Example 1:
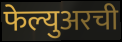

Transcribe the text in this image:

फेल्युअरची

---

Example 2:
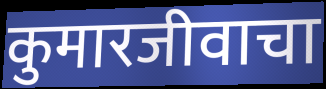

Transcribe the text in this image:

कुमारजीवाचा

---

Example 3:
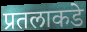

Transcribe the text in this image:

प्रतलाकडे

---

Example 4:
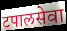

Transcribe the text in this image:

टपालसेवा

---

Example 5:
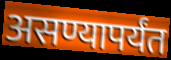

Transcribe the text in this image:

असण्यापर्यंत